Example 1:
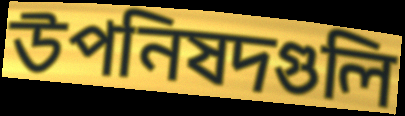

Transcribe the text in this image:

উপনিষদগুলি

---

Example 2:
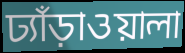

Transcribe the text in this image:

ঢ্যাঁড়াওয়ালা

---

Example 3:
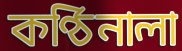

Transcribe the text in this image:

কণ্ঠিনালা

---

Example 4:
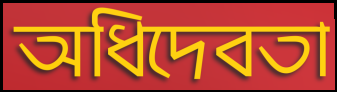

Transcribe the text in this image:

অধিদেবতা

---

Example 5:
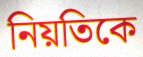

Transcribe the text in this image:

নিয়তিকে